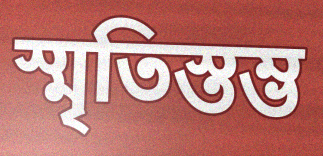
স্মৃতিস্তম্ভ